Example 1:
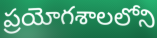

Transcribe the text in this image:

ప్రయోగశాలలోని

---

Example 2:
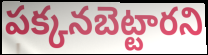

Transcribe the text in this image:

పక్కనబెట్టారని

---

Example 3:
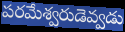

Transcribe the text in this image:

పరమేశ్వరుడెవ్వడు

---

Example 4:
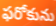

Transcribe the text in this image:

ఫరోకును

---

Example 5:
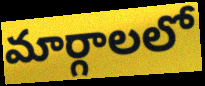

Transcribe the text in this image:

మార్గాలలో